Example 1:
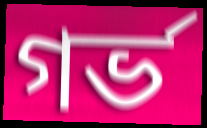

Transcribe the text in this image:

গর্ভ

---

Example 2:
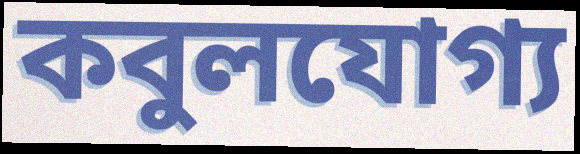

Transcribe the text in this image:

কবুলযোগ্য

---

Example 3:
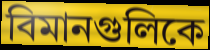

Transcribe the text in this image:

বিমানগুলিকে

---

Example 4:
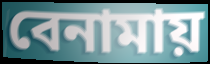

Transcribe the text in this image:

বেনামায়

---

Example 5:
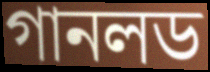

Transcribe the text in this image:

গানলড